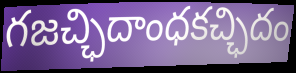
గజచ్ఛిదాంధకచ్ఛిదం